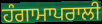
ਹੰਗਾਮਾਪਰਾਲੀ